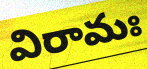
విరామః